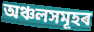
অঞ্চলসমূহৰ